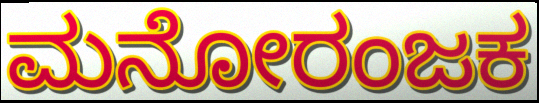
ಮನೋರಂಜಕ